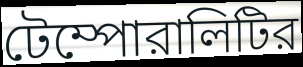
টেম্পোরালিটির